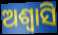
ଅଶ୍ୱାସି